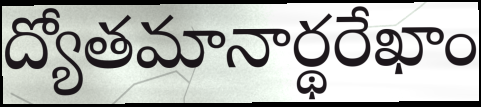
ద్యోతమానార్థరేఖాం